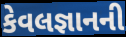
કેવલજ્ઞાનની